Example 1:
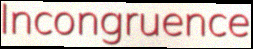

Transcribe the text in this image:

Incongruence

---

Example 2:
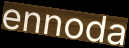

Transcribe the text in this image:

ennoda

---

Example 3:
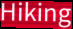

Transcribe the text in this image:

Hiking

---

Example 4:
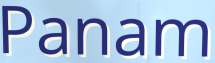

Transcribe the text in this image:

Panam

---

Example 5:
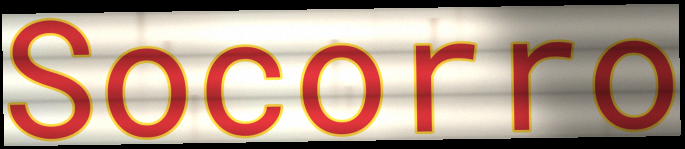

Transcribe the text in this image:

Socorro